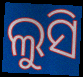
ଲୁସି